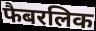
फैबरलिक